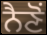
ਨੈਣੋਂ